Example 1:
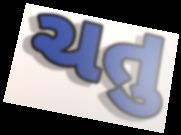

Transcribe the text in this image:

ચતુ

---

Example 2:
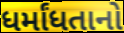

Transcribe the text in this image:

ધર્માંધતાનો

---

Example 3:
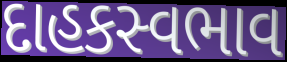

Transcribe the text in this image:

દાહકસ્વભાવ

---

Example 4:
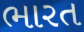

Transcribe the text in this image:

ભારત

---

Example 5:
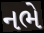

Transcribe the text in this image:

નભે